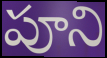
పూని